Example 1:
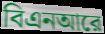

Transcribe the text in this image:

বিএনআরে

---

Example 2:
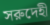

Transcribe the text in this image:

সরুদেহী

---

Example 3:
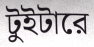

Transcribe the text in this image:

টুইটারে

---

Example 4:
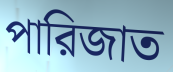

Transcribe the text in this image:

পারিজাত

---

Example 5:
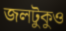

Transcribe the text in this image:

জলটুকুও